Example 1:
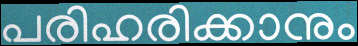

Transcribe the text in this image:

പരിഹരിക്കാനും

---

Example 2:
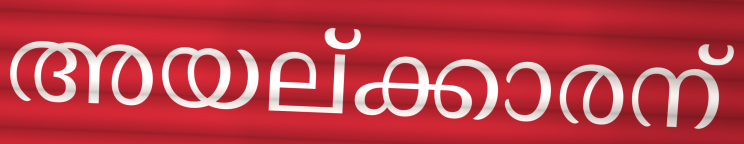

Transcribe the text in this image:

അയല്ക്കാരന്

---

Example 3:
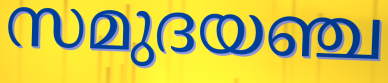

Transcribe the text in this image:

സമുദയഞ്ച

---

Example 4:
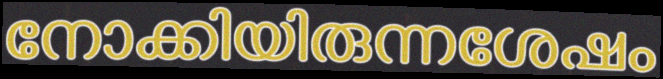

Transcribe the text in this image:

നോക്കിയിരുന്നശേഷം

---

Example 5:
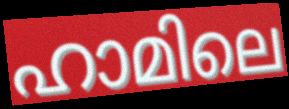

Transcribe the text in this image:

ഹാമിലെ